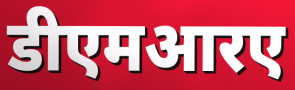
डीएमआरए